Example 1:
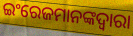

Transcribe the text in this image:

ଇଂରେଜମାନଙ୍କଦ୍ୱାରା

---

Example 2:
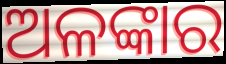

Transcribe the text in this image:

ଅଳଙ୍କାର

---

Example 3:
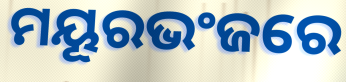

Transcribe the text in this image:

ମୟୂରଭଂଜରେ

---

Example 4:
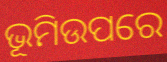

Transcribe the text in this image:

ଭୂମିଉପରେ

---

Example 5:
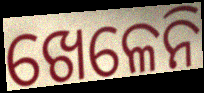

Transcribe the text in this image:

ଖେଳେନି